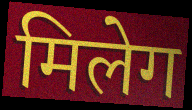
मिलेग